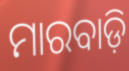
ମାରବାଡ଼ି